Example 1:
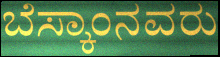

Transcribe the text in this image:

ಬೆಸ್ಕಾಂನವರು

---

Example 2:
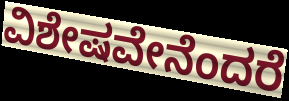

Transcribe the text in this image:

ವಿಶೇಷವೇನೆಂದರೆ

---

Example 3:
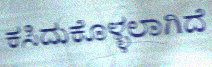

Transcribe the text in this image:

ಕಸಿದುಕೊಳ್ಳಲಾಗಿದೆ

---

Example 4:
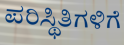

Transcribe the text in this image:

ಪರಿಸ್ಥಿತಿಗಳಿಗೆ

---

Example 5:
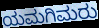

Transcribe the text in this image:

ಯಮಗಿಮರು